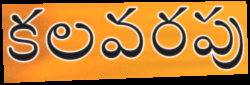
కలవరపు